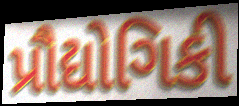
પ્રૌદ્યોગિકી